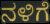
ನಳಿಗೆ